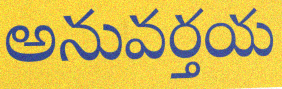
అనువర్తయ